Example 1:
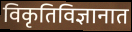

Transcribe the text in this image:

विकृतिविज्ञानात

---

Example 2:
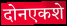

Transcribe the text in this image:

दोनएकशे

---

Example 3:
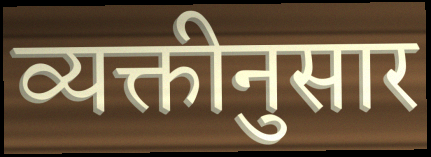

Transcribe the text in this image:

व्यक्तीनुसार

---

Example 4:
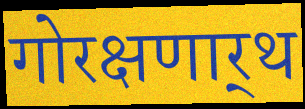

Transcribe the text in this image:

गोरक्षणार्थ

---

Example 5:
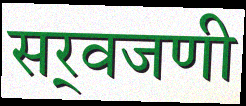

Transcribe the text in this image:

सर्वजणी